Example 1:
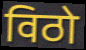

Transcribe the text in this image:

विठो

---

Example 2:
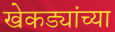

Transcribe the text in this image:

खेकड्यांच्या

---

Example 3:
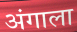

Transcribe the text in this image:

अंगाला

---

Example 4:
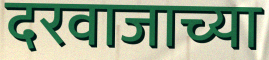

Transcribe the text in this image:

दरवाजाच्या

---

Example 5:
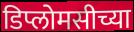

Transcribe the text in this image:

डिप्लोमसीच्या